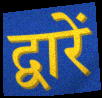
द्वारें